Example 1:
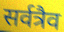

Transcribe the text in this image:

सर्वत्रैव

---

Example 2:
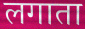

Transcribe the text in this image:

लगाता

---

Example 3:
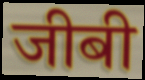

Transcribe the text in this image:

जीबी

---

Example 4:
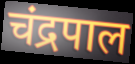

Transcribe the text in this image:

चंद्रपाल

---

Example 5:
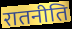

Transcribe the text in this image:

रातनीति